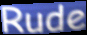
Rude